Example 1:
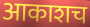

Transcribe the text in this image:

आकाशच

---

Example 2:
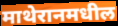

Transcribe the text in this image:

माथेरानमधील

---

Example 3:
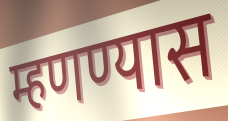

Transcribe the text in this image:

म्हणण्यास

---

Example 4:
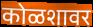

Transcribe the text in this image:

कोळशावर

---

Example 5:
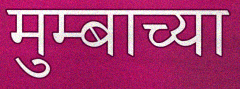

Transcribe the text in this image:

मुम्बाच्या